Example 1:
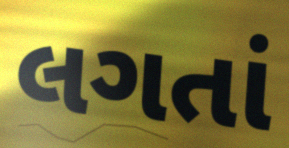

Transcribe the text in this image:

લગતાં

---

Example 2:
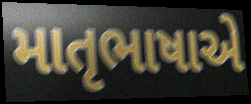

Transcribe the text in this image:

માતૃભાષાએ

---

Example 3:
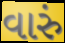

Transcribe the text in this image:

વારું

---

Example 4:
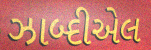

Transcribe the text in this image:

ઝાબ્દીએલ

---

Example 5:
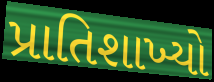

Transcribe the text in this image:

પ્રાતિશાખ્યો